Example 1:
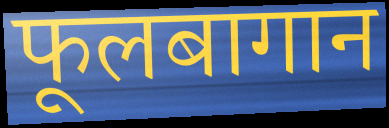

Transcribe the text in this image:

फूलबागान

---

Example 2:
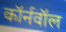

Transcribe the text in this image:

कॉर्नवॉल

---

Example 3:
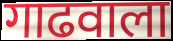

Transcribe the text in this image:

गाढवाला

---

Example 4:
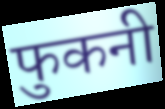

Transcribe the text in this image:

फुकनी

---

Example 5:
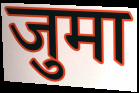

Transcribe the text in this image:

जुमा